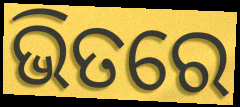
ଭିତରେ